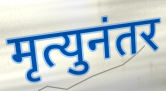
मृत्युनंतर